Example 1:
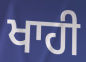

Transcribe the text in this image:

ਖਾਹੀ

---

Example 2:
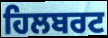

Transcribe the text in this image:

ਹਿਲਬਰਟ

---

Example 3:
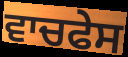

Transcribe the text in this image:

ਵਾਚਫੇਸ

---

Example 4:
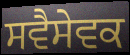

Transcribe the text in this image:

ਸਵੈਸੇਵਕ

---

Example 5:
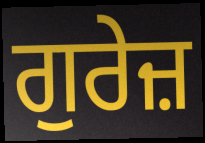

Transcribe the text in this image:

ਗੁਰੇਜ਼